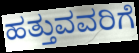
ಹತ್ತುವವರಿಗೆ